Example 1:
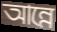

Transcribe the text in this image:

আন্নে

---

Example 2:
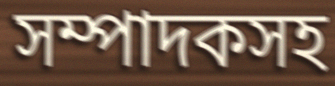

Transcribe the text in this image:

সম্পাদকসহ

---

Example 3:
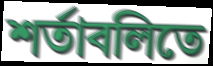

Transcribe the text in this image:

শর্তাবলিতে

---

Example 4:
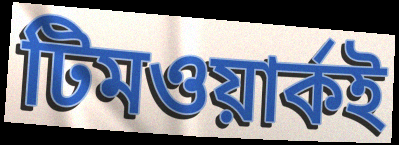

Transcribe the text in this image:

টিমওয়ার্কই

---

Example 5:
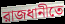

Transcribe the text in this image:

রাজধানীতে